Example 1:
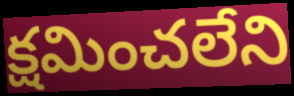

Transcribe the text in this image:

క్షమించలేని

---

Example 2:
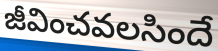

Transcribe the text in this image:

జీవించవలసిందే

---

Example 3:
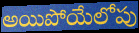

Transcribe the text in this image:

అయిపోయేలోపు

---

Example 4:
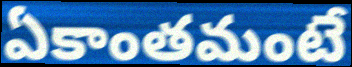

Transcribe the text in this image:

ఏకాంతమంటే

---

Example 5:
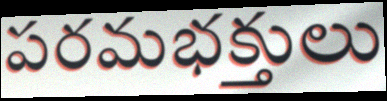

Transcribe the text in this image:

పరమభక్తులు